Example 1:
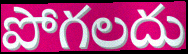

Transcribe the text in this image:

పోగలదు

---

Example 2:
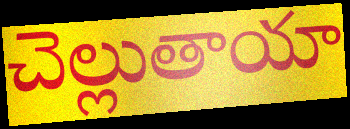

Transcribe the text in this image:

చెల్లుతాయా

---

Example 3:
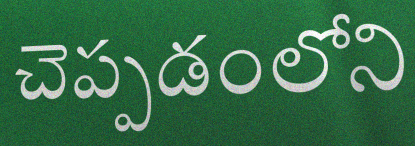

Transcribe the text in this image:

చెప్పడంలోని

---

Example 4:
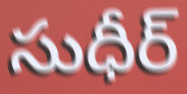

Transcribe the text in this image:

సుధీర్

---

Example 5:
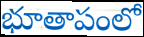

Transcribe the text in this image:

భూతాపంలో